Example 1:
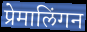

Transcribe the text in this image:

प्रेमालिंगन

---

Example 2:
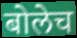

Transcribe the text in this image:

बोलेच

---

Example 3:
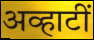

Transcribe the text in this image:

अव्हाटीं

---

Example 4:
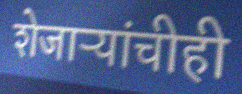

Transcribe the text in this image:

शेजाऱ्यांचीही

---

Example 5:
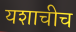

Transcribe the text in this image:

यशाचीच